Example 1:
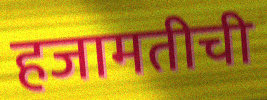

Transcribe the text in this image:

हजामतीची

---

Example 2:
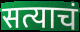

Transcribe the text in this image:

सत्याचं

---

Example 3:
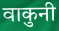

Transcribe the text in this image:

वाकुनी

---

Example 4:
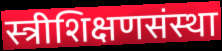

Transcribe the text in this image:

स्त्रीशिक्षणसंस्था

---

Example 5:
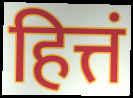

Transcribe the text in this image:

हित्तं